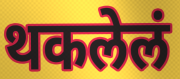
थकलेलं